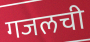
गजलची